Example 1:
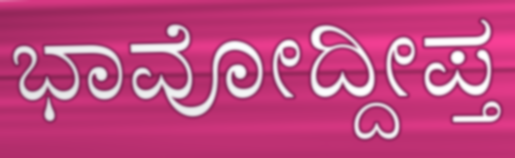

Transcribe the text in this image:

ಭಾವೋದ್ದೀಪ್ತ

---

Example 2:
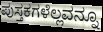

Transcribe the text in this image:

ಪುಸ್ತಕಗಳೆಲ್ಲವನ್ನೂ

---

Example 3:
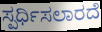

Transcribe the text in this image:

ಸ್ಪರ್ಧಿಸಲಾರದೆ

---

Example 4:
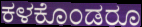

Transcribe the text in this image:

ಕಳಕೊಂಡರೂ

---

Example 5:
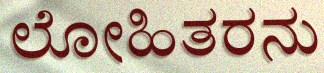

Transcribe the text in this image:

ಲೋಹಿತರನು